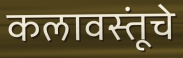
कलावस्तूंचे